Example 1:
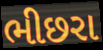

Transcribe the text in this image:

ભીછરા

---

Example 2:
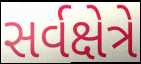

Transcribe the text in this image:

સર્વક્ષેત્રે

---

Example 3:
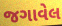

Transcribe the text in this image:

જગાવેલ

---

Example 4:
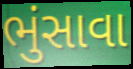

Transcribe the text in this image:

ભુંસાવા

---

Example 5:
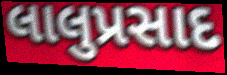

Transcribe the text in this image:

લાલુપ્રસાદ